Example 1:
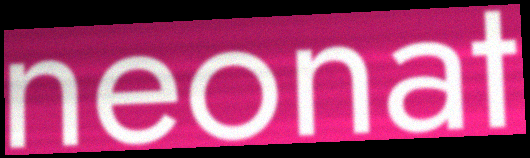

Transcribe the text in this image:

neonat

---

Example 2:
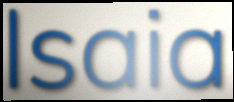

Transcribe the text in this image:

Isaia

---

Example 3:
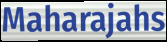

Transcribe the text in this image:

Maharajahs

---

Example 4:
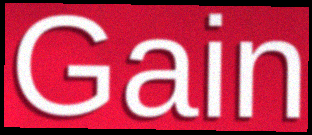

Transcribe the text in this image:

Gain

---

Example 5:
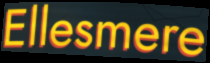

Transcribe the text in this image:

Ellesmere